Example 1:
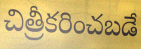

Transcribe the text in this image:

చిత్రీకరించబడే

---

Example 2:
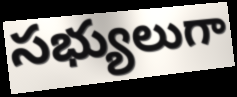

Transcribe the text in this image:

సభ్యులుగా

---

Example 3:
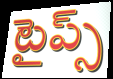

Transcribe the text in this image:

టైప్స్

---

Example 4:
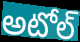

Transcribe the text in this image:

అటోల్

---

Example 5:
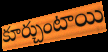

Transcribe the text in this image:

కూర్చుంటాయి